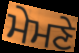
ਮੇਮਣੇ